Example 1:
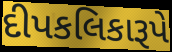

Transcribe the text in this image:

દીપકલિકારૂપે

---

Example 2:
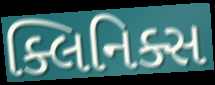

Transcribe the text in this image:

ક્લિનિક્સ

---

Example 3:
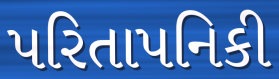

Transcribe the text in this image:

પરિતાપનિકી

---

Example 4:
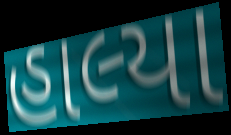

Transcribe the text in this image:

હાલ્યા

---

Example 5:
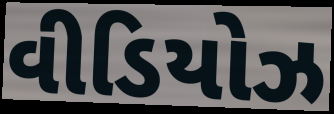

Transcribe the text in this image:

વીડિયોઝ